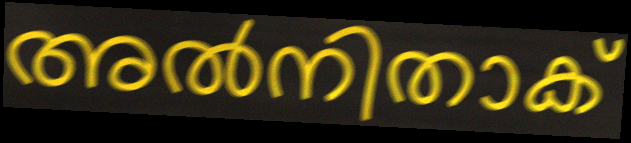
അൽനിതാക്